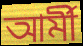
আৰ্মী